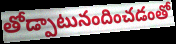
తోడ్పాటునందించడంతో